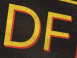
DF